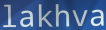
lakhva